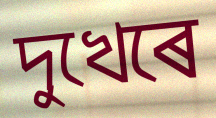
দুখেৰে